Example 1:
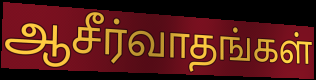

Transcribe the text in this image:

ஆசீர்வாதங்கள்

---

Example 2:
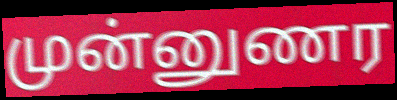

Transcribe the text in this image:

முன்னுணர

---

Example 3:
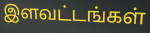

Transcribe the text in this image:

இளவட்டங்கள்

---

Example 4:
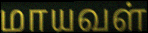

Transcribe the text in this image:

மாயவள்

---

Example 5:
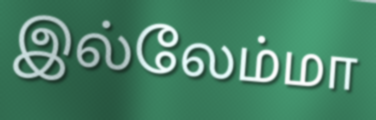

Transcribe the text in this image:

இல்லேம்மா